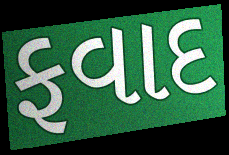
ફવાદ